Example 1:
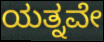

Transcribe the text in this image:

ಯತ್ನವೇ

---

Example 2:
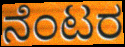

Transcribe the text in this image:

ನೆಂಟರ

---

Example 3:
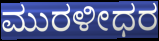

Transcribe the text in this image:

ಮುರಳೀಧರ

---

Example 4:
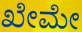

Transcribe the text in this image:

ಖೇಮೇ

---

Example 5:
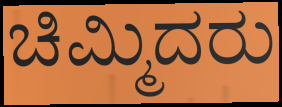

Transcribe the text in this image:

ಚಿಮ್ಮಿದರು